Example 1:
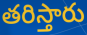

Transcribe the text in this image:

తరిస్తారు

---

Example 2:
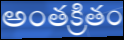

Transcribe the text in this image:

అంతక్రితం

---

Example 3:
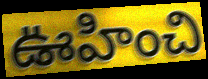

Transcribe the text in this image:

ఊహించి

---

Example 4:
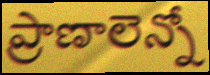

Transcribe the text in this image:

ప్రాణాలెన్నో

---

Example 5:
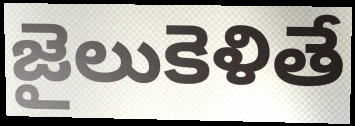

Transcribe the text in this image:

జైలుకెళితే